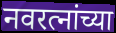
नवरत्नांच्या